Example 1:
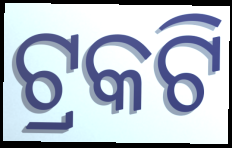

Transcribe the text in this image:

ଟ୍ରକଟି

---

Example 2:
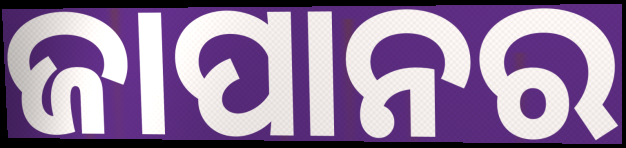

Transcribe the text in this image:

ଜାପାନର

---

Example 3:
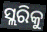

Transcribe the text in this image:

ସ୍ଲରିକୁ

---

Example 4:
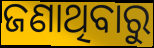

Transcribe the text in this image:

ଜଣାଥିବାରୁ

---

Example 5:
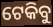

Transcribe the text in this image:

ଟେକିବୁ